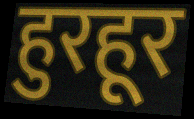
हुरहूर